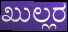
ಖುಲ್ಲರ